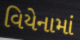
વિયેનામાં